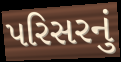
પરિસરનું